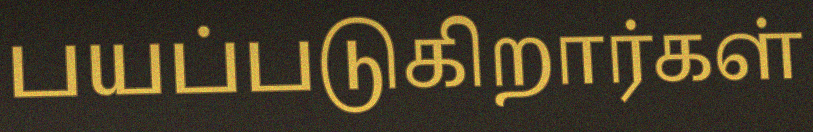
பயப்படுகிறார்கள்